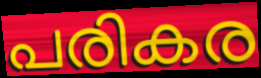
പരികര